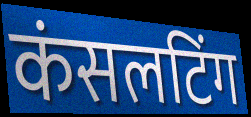
कंसलटिंग